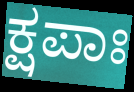
ಕ್ಷಪಾಃ